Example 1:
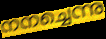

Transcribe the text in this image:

നനച്ചെന്നു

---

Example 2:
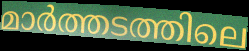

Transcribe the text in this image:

മാർത്തടത്തിലെ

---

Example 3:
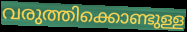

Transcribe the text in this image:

വരുത്തിക്കൊണ്ടുള്ള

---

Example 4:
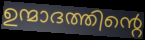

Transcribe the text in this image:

ഉന്മാദത്തിന്റെ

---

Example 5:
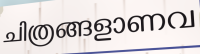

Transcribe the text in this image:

ചിത്രങ്ങളാണവ